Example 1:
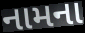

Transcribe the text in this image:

નામના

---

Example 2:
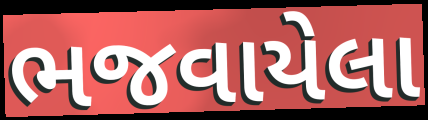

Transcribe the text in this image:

ભજવાયેલા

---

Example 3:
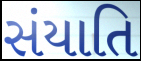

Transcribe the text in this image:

સંયાતિ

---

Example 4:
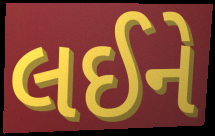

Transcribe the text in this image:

લઈને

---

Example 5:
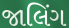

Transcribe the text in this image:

જાલિંગ